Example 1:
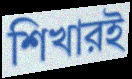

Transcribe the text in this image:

শিখারই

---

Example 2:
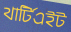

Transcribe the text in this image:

থার্টিএইট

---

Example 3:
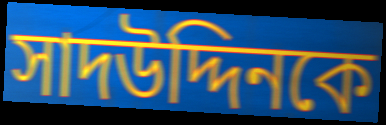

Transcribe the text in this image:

সাদউদ্দিনকে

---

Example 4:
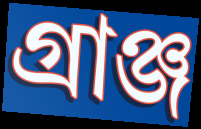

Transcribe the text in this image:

গ্রাঞ্জ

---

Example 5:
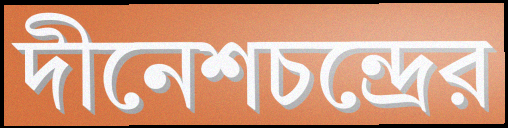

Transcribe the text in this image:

দীনেশচন্দ্রের